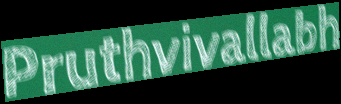
Pruthvivallabh